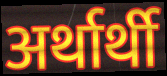
अर्थार्थी